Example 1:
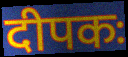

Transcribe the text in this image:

दीपकः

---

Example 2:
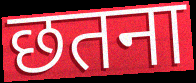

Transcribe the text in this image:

छतना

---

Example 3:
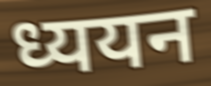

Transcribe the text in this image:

ध्ययन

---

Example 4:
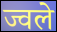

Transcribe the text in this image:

ज्वले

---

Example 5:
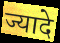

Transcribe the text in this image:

ज्यादे